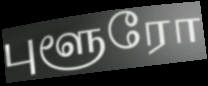
புளூரோ